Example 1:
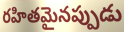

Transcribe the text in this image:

రహితమైనప్పుడు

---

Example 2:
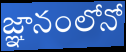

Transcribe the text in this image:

జ్ఞానంలోనో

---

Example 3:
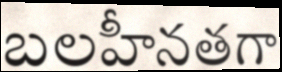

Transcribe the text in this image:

బలహీనతగా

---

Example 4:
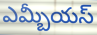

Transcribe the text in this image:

ఎమ్బీయస్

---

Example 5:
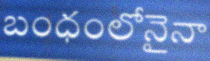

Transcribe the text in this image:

బంధంలోనైనా